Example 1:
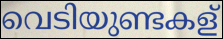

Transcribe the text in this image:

വെടിയുണ്ടകള്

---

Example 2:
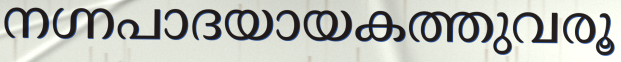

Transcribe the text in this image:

നഗ്നപാദയായകത്തുവരൂ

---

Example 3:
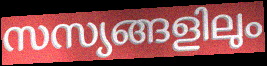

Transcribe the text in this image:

സസ്യങ്ങളിലും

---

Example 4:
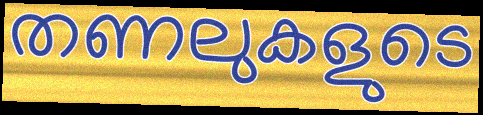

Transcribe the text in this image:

തണലുകളുടെ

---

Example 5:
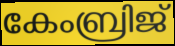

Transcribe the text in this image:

കേംബ്രിജ്